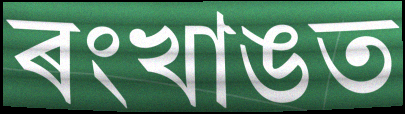
ৰংখাঙত